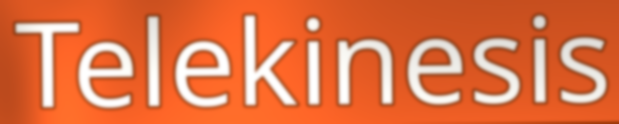
Telekinesis